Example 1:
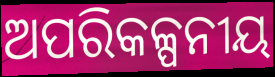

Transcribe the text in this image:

ଅପରିକଳ୍ପନୀୟ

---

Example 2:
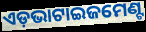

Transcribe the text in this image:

ଏଡ଼ଭାଟାଇଜମେଣ୍ଟ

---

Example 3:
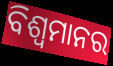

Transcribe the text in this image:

ବିଶ୍ୱମାନର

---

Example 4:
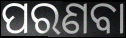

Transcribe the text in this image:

ପରଣବା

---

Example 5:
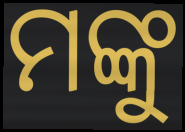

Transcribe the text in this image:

ମଙ୍କୁ